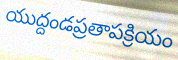
యుద్దండప్రతాపక్రియం